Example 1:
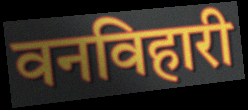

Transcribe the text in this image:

वनविहारी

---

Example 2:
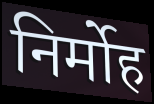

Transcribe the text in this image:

निर्मोह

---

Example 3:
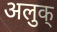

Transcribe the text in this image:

अलुक्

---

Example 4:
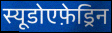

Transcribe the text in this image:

स्यूडोएफ़ेड्रिन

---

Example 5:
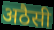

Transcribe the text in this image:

अठैसी